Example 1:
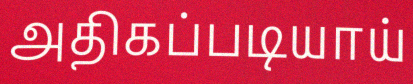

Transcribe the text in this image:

அதிகப்படியாய்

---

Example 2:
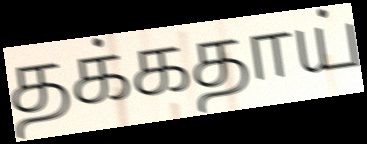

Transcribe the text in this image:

தக்கதாய்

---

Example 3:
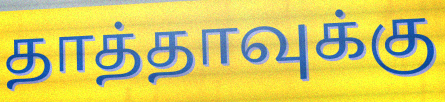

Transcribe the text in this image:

தாத்தாவுக்கு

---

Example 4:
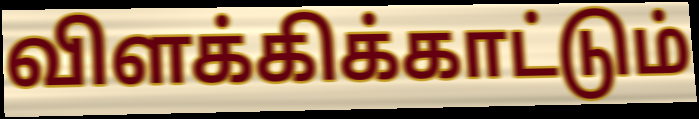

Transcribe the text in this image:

விளக்கிக்காட்டும்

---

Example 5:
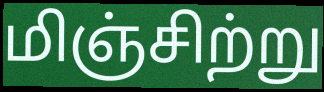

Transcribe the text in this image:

மிஞ்சிற்று